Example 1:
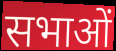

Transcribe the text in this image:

सभाओं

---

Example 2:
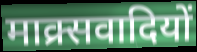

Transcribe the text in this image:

माक्र्सवादियों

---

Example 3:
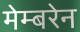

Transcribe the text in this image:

मेम्बरेन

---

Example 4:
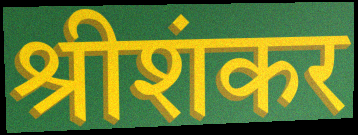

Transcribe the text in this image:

श्रीशंकर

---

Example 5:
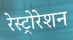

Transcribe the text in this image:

रेस्ट्रोरेशन